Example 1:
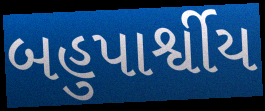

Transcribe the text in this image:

બહુપાર્શ્વીય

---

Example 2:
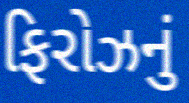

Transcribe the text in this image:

ફિરોઝનું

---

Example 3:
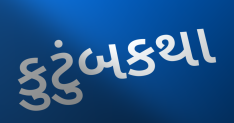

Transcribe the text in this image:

કુટુંબકથા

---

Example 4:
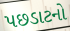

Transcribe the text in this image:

પછડાટનો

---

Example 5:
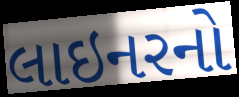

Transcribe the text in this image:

લાઇનરનો